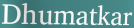
Dhumatkar